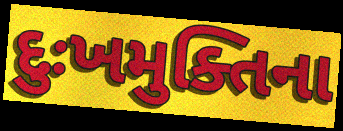
દુઃખમુક્તિના